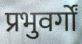
प्रभुवर्गों